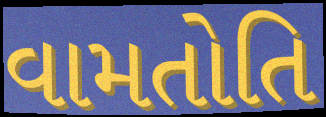
વામતોતિ